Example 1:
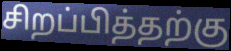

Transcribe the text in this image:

சிறப்பித்தற்கு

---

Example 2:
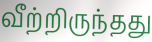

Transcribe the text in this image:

வீற்றிருந்தது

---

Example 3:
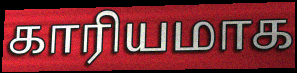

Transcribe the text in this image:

காரியமாக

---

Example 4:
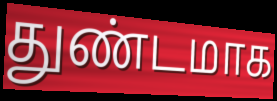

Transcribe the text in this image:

துண்டமாக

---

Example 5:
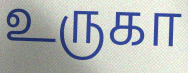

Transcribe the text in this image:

உருகா